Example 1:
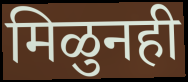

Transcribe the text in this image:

मिळुनही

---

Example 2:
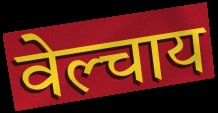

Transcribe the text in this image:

वेल्चाय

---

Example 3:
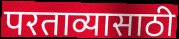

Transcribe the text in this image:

परताव्यासाठी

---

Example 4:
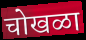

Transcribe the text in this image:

चोखळा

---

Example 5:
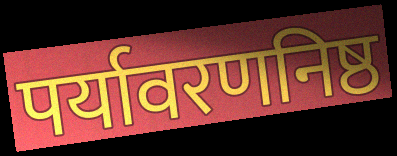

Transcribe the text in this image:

पर्यावरणनिष्ठ